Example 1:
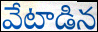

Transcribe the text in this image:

వేటాడిన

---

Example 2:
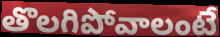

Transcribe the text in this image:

తొలగిపోవాలంటే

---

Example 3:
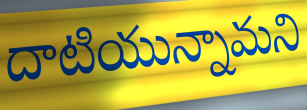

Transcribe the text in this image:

దాటియున్నామని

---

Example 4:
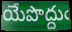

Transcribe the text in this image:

యేపొద్దుఁ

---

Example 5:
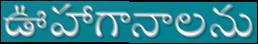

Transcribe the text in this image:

ఊహాగానాలను